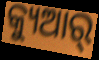
କ୍ୟୁଆର୍